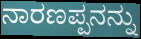
ನಾರಣಪ್ಪನನ್ನು